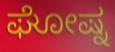
ಘೋಷ್ನ